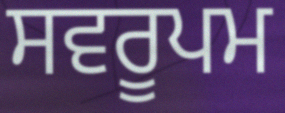
ਸਵਰੂਪਮ